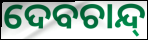
ଦେବଚାନ୍ଦ୍